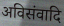
अविसंवादि